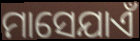
ମାସେଯାଏଁ